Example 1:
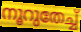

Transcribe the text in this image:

നൂറുതേച്ച്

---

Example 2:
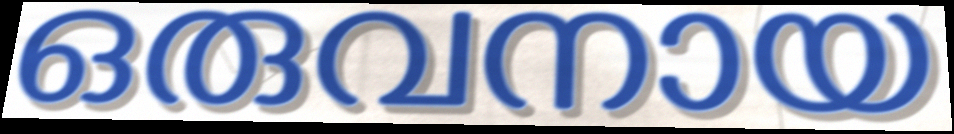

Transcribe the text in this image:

ഒരുവനായ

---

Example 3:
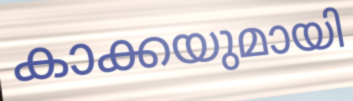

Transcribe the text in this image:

കാക്കയുമായി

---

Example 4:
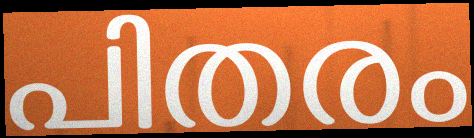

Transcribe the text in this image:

പിതരം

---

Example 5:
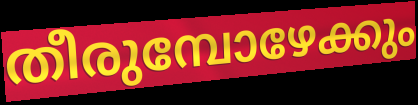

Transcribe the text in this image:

തീരുമ്പോഴേക്കും